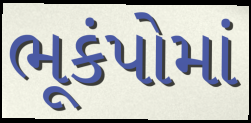
ભૂકંપોમાં